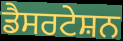
ਡੈਸਰਟੇਸ਼ਨ